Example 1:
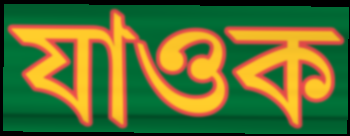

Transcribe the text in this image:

যাওক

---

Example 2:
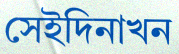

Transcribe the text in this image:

সেইদিনাখন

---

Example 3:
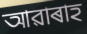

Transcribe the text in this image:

আৱাৰাহ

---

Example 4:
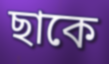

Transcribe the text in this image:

ছাকে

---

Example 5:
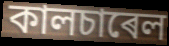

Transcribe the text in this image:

কালচাৰেল